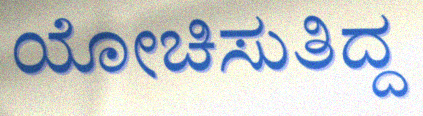
ಯೋಚಿಸುತಿದ್ದ